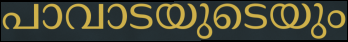
പാവാടയുടെയും